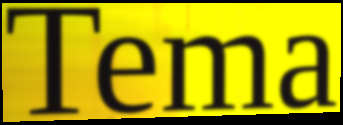
Tema